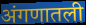
अंगणातली